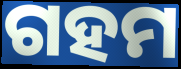
ଗହମ